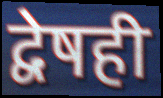
द्वेषही